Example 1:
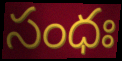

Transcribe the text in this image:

సంధః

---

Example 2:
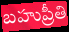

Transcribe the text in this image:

బహుప్రీతి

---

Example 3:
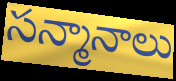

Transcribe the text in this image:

సన్మానాలు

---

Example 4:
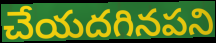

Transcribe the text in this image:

చేయదగినపని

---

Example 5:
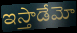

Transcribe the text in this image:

ఇస్తాడేమో